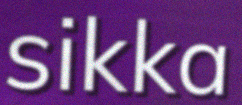
sikka